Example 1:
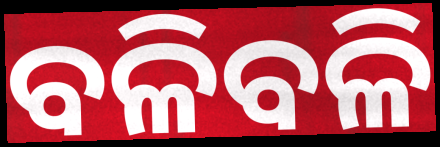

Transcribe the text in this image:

ବଳିବଳି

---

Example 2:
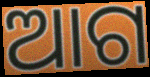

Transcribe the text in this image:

ଆଗ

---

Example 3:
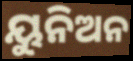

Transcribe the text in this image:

ୟୁନିଅନ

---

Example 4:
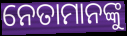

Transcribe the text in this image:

ନେତାମାନଙ୍କୁ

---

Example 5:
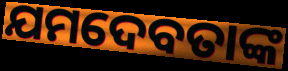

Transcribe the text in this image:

ଯମଦେବତାଙ୍କ